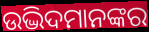
ଉଦ୍ଭିଦମାନଙ୍କର